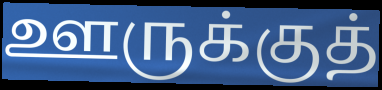
ஊருக்குத்